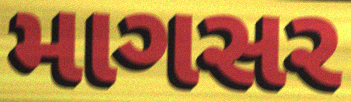
માગસર